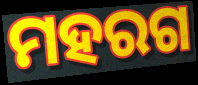
ମହରଗ